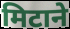
मिटाने